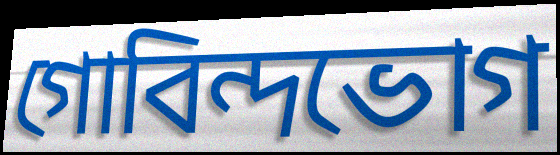
গোবিন্দভোগ